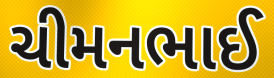
ચીમનભાઈ